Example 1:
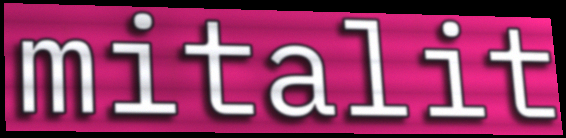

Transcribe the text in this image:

mitalit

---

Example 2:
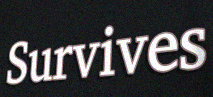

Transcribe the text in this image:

Survives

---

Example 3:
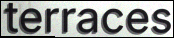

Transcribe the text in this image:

terraces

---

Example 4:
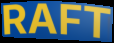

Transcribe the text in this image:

RAFT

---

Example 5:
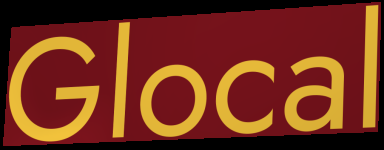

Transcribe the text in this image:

Glocal